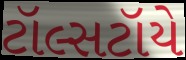
ટૉલ્સટૉયે